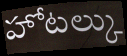
హోటల్కు